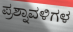
ಪ್ರಶ್ನಾವಳಿಗಳ